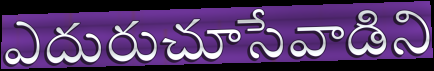
ఎదురుచూసేవాడిని